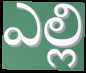
ఎల్లి